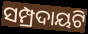
ସମ୍ପ୍ରଦାୟଟି